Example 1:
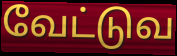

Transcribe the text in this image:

வேட்டுவ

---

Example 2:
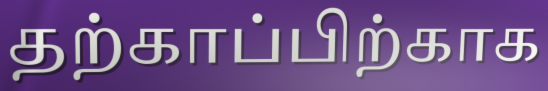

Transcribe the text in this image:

தற்காப்பிற்காக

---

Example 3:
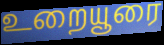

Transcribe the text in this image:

உறையூரை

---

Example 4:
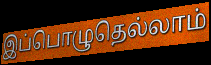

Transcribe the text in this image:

இப்பொழுதெல்லாம்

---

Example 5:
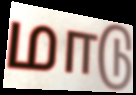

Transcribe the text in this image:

மாடு